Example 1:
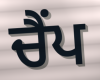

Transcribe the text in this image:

ਚੈਂਪ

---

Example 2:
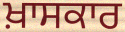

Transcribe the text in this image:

ਖ਼ਾਸਕਾਰ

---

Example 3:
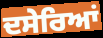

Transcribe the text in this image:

ਦਸੇਰਿਆਂ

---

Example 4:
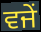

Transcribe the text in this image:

ਵਜੇਂ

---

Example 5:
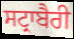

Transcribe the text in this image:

ਸਟ੍ਰਾਬੈਰੀ